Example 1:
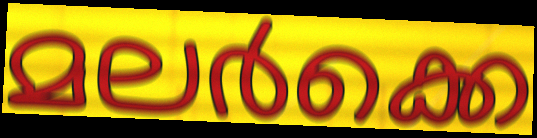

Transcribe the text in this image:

മലർക്കെ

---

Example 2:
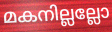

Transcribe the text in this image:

മകനില്ലല്ലോ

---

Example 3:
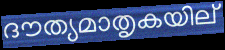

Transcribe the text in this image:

ദൗത്യമാതൃകയില്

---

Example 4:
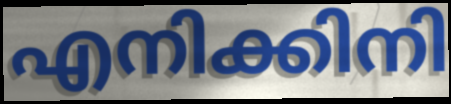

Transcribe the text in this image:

എനിക്കിനി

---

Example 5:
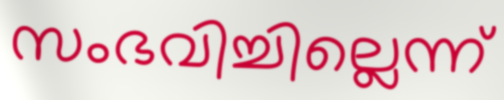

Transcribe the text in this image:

സംഭവിച്ചില്ലെന്ന്